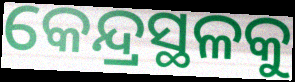
କେନ୍ଦ୍ରସ୍ଥଳକୁ